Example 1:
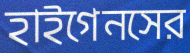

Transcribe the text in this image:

হাইগেনসের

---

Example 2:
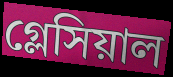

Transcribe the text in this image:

গ্লেসিয়াল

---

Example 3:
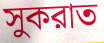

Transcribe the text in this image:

সুকরাত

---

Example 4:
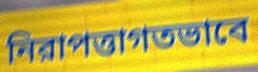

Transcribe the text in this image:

নিরাপত্তাগতভাবে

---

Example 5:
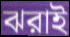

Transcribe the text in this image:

ঝরাই